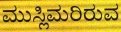
ಮುಸ್ಲಿಮರಿರುವ